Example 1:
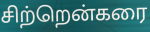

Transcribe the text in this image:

சிற்றென்கரை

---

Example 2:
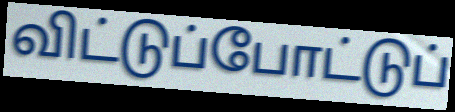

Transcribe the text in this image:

விட்டுப்போட்டுப்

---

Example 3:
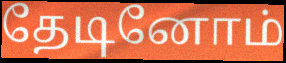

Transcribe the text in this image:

தேடினோம்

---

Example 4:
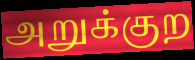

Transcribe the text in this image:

அறுக்குற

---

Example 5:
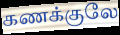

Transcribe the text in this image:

கணக்குலே